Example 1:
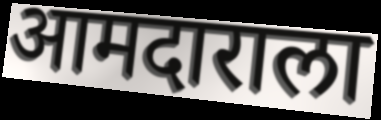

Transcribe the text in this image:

आमदाराला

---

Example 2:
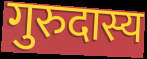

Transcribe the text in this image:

गुरुदास्य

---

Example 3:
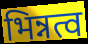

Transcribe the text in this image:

भिन्नत्व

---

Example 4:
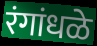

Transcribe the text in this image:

रंगांधळे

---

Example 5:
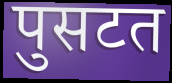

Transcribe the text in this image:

पुसटत